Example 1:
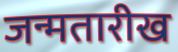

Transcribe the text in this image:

जन्मतारीख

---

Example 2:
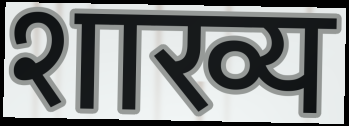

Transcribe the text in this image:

शाख्य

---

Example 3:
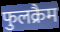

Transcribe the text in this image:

फुलक्रैम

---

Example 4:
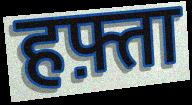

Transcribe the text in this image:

हफ़्ता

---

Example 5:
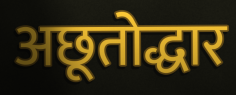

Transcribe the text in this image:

अछूतोद्धार